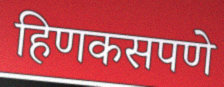
हिणकसपणे